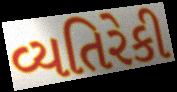
વ્યતિરેકી